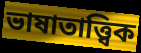
ভাষাতাত্ত্বিক